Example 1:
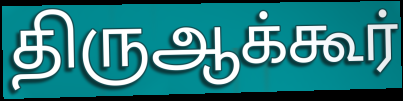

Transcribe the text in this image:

திருஆக்கூர்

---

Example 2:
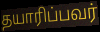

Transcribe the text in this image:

தயாரிப்பவர்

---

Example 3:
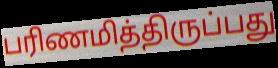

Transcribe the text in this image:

பரிணமித்திருப்பது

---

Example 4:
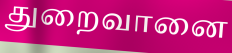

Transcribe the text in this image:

துறைவானை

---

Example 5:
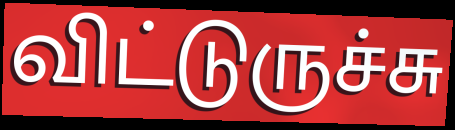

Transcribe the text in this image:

விட்டுருச்சு